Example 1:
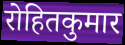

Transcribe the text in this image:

रोहितकुमार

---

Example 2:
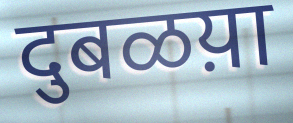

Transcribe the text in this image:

दुबळय़ा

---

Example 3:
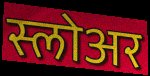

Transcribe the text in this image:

स्लोअर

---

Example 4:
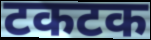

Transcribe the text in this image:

टकटक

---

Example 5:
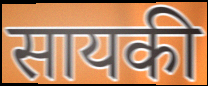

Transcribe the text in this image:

सायकी